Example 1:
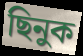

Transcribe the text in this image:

ছিনুক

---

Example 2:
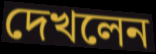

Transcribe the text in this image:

দেখলেন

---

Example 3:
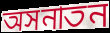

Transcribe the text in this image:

অসনাতন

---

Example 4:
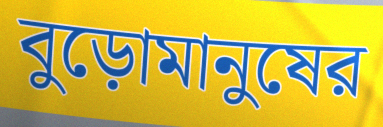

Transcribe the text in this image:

বুড়োমানুষের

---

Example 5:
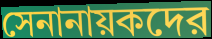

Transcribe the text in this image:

সেনানায়কদের